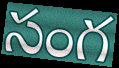
సంగ